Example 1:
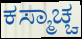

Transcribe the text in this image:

ಕಸ್ಮಾಚ್ಚ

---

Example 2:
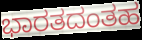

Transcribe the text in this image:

ಭಾರತದಂತಹ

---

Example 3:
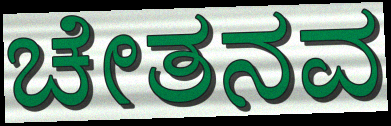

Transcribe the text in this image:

ಚೇತನವ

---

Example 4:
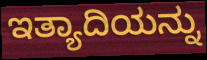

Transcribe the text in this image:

ಇತ್ಯಾದಿಯನ್ನು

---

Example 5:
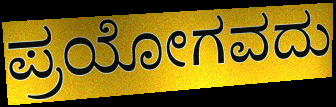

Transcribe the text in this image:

ಪ್ರಯೋಗವದು